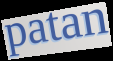
patan